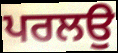
ਪਰਲਉ